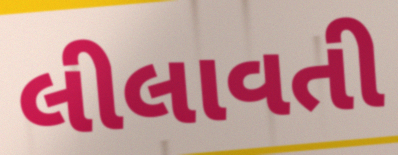
લીલાવતી